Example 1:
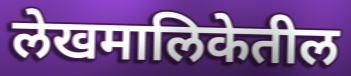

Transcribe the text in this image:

लेखमालिकेतील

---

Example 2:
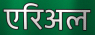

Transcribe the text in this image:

एरिअल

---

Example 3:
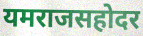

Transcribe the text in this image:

यमराजसहोदर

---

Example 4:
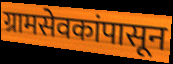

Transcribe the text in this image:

ग्रामसेवकांपासून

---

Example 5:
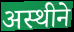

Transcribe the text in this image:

अस्थीने